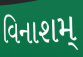
વિનાશમ્